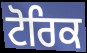
ਟੋਰਿਕ